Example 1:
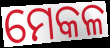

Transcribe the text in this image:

ମେକଳ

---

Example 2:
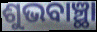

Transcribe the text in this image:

ଶୁଭବାଞ୍ଛା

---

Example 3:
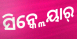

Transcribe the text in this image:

ସିନ୍କ୍ଲେୟାର୍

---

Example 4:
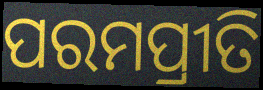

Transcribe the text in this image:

ପରମପ୍ରୀତି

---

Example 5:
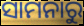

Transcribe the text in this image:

ସାମନାରୁ